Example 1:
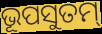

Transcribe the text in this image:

ଭୂପସୁତମ୍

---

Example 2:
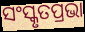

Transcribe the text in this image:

ସଂସ୍କୃତପ୍ରଭା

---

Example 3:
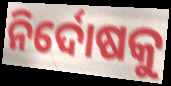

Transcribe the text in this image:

ନିର୍ଦୋଷକୁ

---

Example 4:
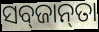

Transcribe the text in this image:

ସବ୍‌ଜାନ୍‌ତା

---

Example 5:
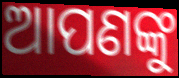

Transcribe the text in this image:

ଆପଣଙ୍କୁ